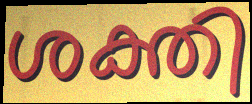
ശക്തി